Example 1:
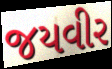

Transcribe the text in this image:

જયવીર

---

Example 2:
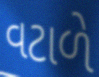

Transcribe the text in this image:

વટાળે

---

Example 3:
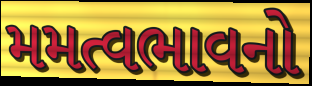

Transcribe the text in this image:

મમત્વભાવનો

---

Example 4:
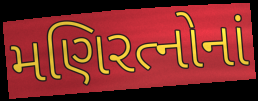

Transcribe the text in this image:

મણિરત્નોનાં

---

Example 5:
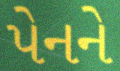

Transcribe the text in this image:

પેનને